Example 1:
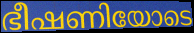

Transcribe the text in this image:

ഭീഷണിയോടെ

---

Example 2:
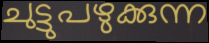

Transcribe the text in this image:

ചുട്ടുപഴുക്കുന്ന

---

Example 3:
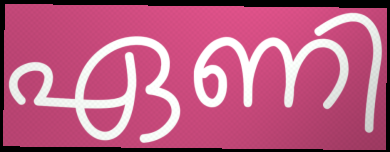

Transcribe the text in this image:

ഏണി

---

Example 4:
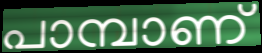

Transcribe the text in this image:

പാമ്പാണ്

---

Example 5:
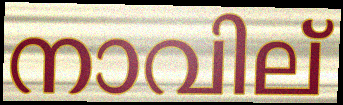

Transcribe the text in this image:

നാവില്